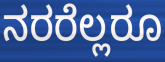
ನರರೆಲ್ಲರೂ